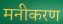
मनीकरण